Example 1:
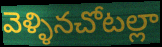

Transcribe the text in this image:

వెళ్ళినచోటల్లా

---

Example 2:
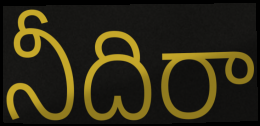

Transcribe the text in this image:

నీదిరా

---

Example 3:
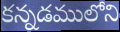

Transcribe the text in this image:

కన్నడములోని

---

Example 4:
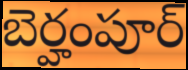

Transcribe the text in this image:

బెర్హంపూర్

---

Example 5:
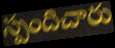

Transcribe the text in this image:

స్పందిచారు